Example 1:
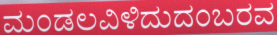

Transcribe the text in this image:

ಮಂಡಲವಿಳಿದುದಂಬರವ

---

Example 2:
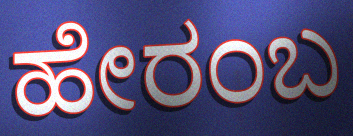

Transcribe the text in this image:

ಹೇರಂಬ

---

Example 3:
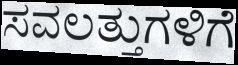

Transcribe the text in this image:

ಸವಲತ್ತುಗಳಿಗೆ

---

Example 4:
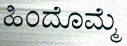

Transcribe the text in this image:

ಹಿಂದೊಮ್ಮೆ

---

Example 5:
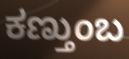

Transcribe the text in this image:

ಕಣ್ತುಂಬ